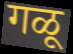
गळू